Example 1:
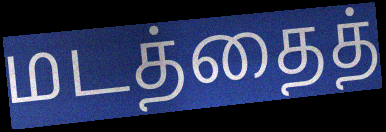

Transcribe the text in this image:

மடத்தைத்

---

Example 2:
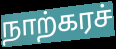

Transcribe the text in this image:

நாற்கரச்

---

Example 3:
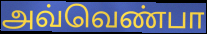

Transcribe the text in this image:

அவ்வெண்பா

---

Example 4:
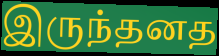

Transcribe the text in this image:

இருந்தனத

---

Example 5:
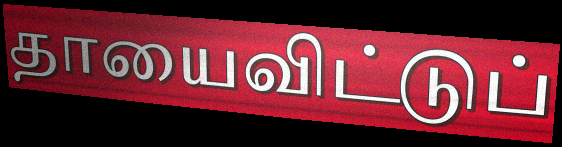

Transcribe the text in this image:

தாயைவிட்டுப்